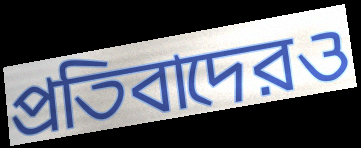
প্রতিবাদেরও